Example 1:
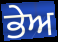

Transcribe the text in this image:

ਭੇਅ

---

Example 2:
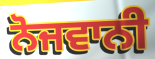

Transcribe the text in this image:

ਨੋਜਵਾਨੀ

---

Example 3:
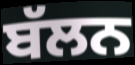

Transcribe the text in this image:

ਬੱਲਨ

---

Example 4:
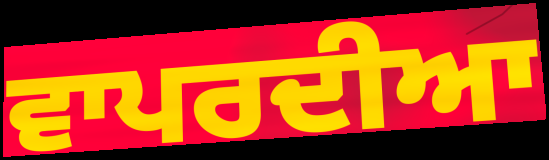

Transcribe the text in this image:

ਵਾਪਰਦੀਆ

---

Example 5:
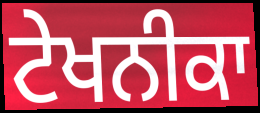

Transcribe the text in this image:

ਟੇਖਨੀਕਾ